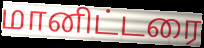
மானிட்டரை